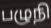
பழுநி